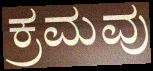
ಕ್ರಮವು